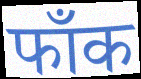
फाँक